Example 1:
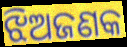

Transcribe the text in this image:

ଝିଅଜଣକ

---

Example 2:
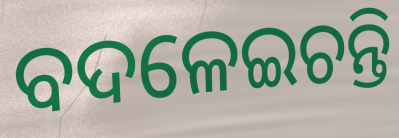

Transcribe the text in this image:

ବଦଳେଇଚନ୍ତି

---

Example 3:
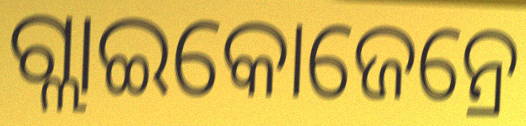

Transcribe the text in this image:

ଗ୍ଲାଇକୋଜେନ୍ରେ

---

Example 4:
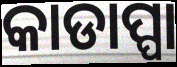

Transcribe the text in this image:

କାଡାପ୍ପା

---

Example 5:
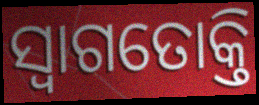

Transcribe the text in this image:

ସ୍ଵାଗତୋକ୍ତି